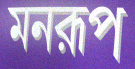
মনরূপ